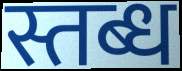
स्तब्ध